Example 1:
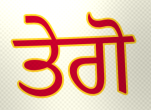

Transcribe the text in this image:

ਤੇਗੋ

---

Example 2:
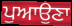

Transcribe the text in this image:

ਪੁਆਉਣਾ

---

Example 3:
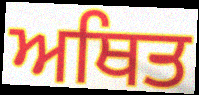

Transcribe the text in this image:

ਅਥਿਤ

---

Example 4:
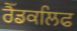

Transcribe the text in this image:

ਰੈੱਡਕਲਿਫ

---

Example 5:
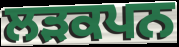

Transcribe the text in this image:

ਲੜਕਪਨ